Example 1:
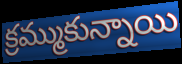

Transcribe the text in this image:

క్రమ్ముకున్నాయి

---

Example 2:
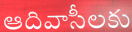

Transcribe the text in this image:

ఆదివాసీలకు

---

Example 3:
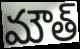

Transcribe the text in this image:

మౌత్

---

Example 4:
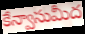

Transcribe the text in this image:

కేన్వాసుమీద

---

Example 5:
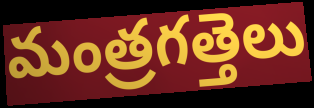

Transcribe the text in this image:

మంత్రగత్తెలు